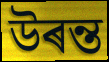
উৰন্ত